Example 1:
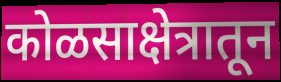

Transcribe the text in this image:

कोळसाक्षेत्रातून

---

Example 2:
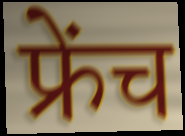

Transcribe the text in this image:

फ्रेंच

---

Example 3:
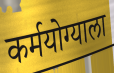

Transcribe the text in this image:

कर्मयोग्याला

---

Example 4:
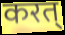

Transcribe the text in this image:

करत्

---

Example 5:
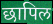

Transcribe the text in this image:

छापिल